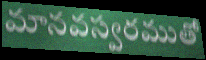
మానవస్వరముతో